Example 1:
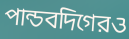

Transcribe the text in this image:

পান্ডবদিগেরও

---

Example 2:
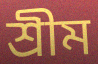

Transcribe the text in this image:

শ্রীম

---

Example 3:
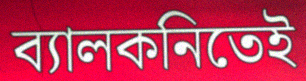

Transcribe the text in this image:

ব্যালকনিতেই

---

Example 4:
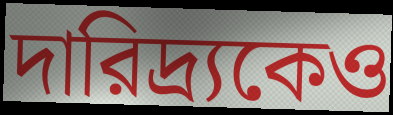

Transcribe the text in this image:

দারিদ্র্যকেও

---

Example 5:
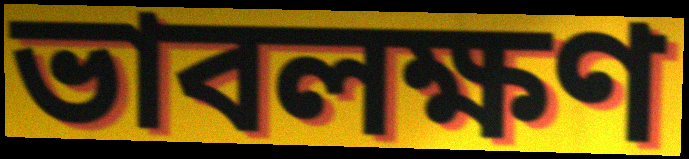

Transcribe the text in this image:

ভাবলক্ষণ